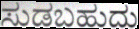
ಸುಡಬಹುದು